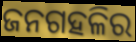
ଜନଗହଳିର